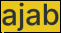
ajab